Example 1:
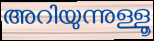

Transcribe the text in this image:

അറിയുന്നുള്ളൂ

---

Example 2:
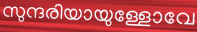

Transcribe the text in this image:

സുന്ദരിയായുള്ളോവേ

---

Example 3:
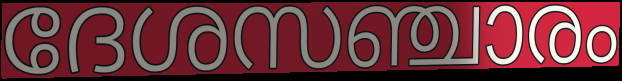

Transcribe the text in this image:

ദേശസഞ്ചാരം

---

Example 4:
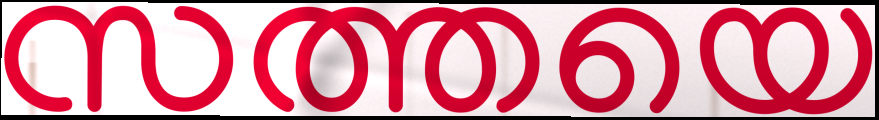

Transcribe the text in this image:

സത്തയെ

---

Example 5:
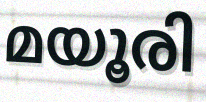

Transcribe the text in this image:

മയൂരി